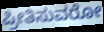
ಪ್ರೀತಿಸುವರೋ